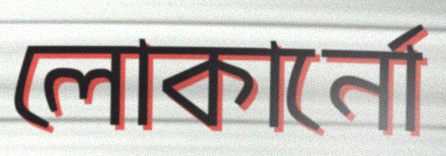
লোকার্নো